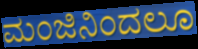
ಮಂಜಿನಿಂದಲೂ